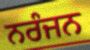
ਨਰੰਜਨ